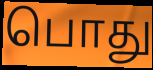
பொது